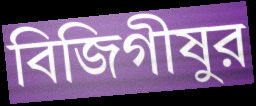
বিজিগীষুর